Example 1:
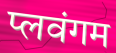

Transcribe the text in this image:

प्लवंगम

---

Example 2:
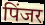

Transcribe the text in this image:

पिंजर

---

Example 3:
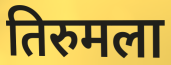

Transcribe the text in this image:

तिरुमला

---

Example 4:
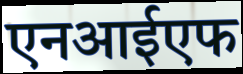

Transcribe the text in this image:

एनआईएफ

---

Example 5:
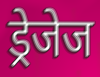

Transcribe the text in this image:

ड्रेजेज